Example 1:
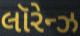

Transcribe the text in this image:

લૉરેન્ઝ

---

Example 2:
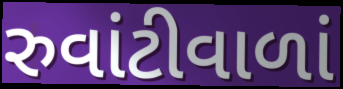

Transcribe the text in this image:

રુવાંટીવાળાં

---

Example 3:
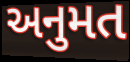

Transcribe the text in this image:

અનુમત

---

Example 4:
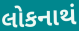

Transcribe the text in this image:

લોકનાથં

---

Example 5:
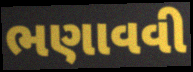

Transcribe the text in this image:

ભણાવવી